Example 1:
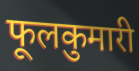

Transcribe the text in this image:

फूलकुमारी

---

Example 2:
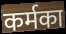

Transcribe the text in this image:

कर्मका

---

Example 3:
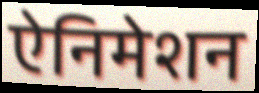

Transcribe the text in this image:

ऐनिमेशन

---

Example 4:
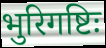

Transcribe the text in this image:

भुरिगष्टिः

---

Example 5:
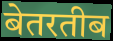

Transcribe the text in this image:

बेतरतीब